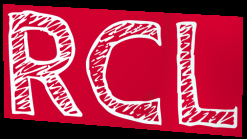
RCL